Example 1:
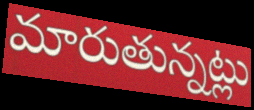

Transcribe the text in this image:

మారుతున్నట్లు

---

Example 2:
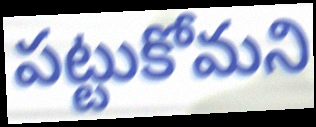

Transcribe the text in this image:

పట్టుకోమని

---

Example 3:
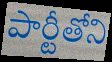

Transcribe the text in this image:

పార్టీతోని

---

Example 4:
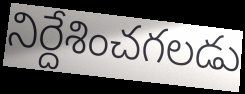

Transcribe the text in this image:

నిర్దేశించగలడు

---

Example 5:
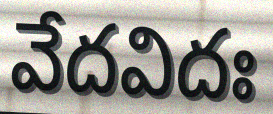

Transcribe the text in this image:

వేదవిదః